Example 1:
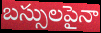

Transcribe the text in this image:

బస్సులపైనా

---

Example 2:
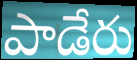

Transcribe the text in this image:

పాడేరు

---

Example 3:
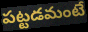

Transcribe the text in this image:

పట్టడమంటే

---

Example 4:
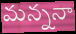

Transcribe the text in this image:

మన్ననా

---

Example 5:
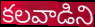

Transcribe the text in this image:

కలవాడిని